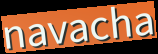
navacha